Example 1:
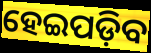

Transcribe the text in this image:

ହେଇପଡ଼ିବ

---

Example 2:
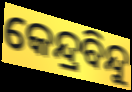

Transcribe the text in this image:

କେନ୍ଦ୍ରବିନ୍ଦୁ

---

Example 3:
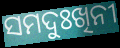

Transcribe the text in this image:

ସମଦୁଃଖିନୀ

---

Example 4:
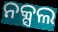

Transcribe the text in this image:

ନକ୍ସଲ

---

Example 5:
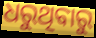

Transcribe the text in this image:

ଧରୁଥିବାରୁ